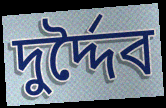
দুর্দ্দৈব